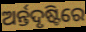
ଅର୍ନ୍ତଦୃଷ୍ଟିରେ